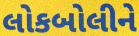
લોકબોલીને